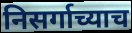
निसर्गाच्याच